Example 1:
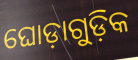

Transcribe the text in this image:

ଘୋଡ଼ାଗୁଡ଼ିକ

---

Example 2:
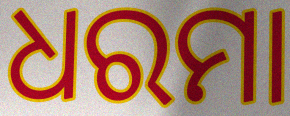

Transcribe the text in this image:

ଧରମା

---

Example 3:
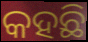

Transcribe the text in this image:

କହଛି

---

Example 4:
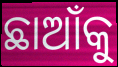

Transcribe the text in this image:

ଛାଆଁକୁ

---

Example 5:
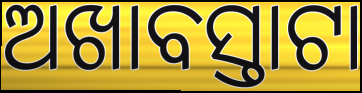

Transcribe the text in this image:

ଅଖାବସ୍ତାଟା